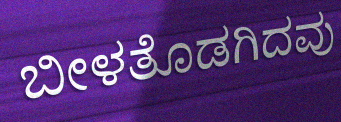
ಬೀಳತೊಡಗಿದವು